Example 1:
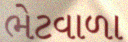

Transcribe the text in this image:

ભેટવાળા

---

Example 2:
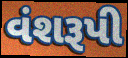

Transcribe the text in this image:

વંશરૂપી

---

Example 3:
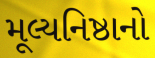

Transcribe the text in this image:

મૂલ્યનિષ્ઠાનો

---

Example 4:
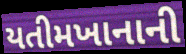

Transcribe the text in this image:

યતીમખાનાની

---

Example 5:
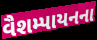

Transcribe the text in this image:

વૈશમ્પાયનના